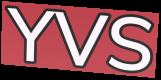
YVS